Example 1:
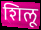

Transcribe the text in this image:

शिलू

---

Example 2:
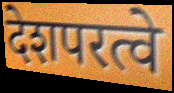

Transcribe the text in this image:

देशपरत्वे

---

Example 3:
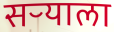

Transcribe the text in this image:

सऱ्याला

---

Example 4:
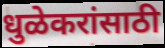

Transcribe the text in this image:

धुळेकरांसाठी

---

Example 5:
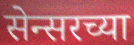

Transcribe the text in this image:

सेन्सरच्या